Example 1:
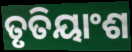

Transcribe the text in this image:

ତୃତିୟାଂଶ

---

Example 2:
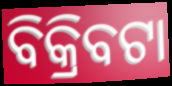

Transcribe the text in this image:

ବିକ୍ରିବଟା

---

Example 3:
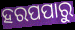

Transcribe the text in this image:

ହରପପାରୁ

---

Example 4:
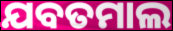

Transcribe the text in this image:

ଯବତମାଲ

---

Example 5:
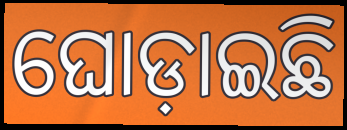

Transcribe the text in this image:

ଘୋଡ଼ାଇଛି